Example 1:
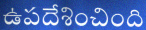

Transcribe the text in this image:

ఉపదేశించింది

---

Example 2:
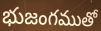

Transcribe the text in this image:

భుజంగముతో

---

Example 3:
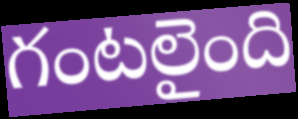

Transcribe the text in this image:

గంటలైంది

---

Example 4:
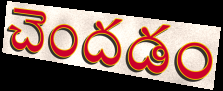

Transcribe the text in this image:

చెందడం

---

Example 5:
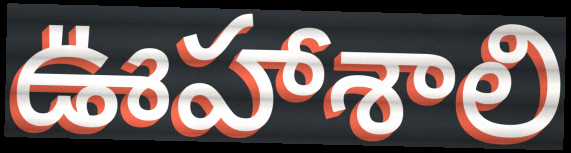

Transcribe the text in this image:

ఊహాశాలి